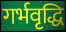
गर्भवृद्धि